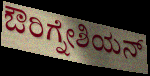
ಔರಿಗ್ನೇಶಿಯನ್